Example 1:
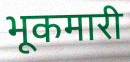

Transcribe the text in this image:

भूकमारी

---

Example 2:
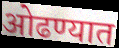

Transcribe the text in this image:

ओढण्यात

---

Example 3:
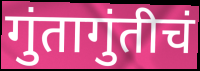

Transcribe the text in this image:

गुंतागुंतीचं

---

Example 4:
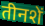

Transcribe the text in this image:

तीनशें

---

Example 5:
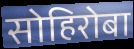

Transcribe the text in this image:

सोहिरोबा